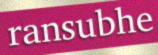
ransubhe